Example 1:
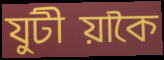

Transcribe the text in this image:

যুটীয়াকৈ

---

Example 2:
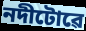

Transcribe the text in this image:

নদীটোৱে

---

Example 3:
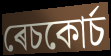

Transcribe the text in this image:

ৰেচকোৰ্চ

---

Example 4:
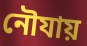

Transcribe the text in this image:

নৌযায়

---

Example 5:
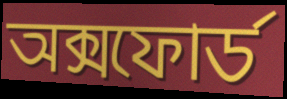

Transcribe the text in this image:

অক্সফোৰ্ড